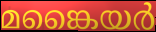
മങ്കൈയർ